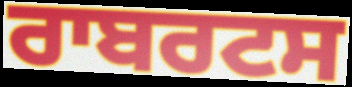
ਰਾਬਰਟਸ